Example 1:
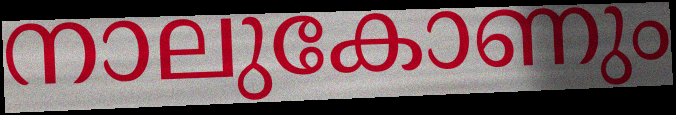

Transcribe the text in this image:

നാലുകോണും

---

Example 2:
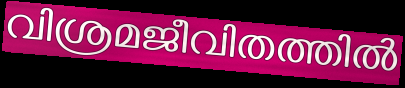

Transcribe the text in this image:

വിശ്രമജീവിതത്തിൽ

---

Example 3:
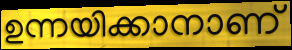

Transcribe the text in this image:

ഉന്നയിക്കാനാണ്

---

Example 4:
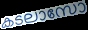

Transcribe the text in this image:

കടലാസോ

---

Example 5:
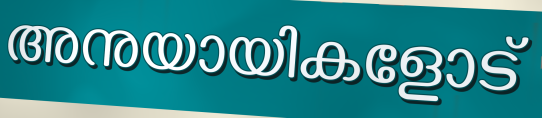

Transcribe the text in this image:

അനുയായികളോട്